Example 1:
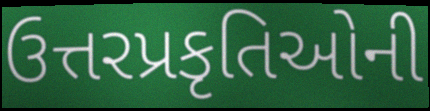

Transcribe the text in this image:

ઉત્તરપ્રકૃતિઓની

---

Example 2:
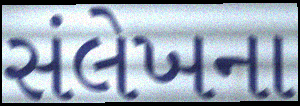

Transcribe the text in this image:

સંલેખના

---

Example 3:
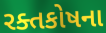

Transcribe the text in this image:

રક્તકોષના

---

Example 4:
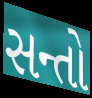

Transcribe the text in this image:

સન્તો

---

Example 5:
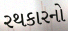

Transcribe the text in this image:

રથકારનો